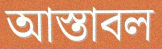
আস্তাবল